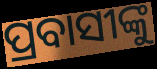
ପ୍ରବାସୀଙ୍କୁ